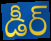
డీర్